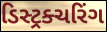
ડિસ્ટ્રક્ચરિંગ